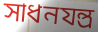
সাধনযন্ত্র